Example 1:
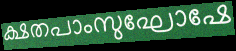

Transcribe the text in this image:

ക്ഷതപാംസുഘോഷേ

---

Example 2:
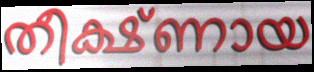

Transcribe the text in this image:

തീക്ഷ്ണായ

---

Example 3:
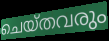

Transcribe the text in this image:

ചെയ്തവരും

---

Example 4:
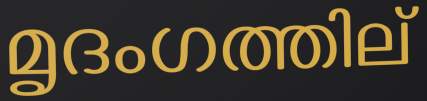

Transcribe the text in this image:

മൃദംഗത്തില്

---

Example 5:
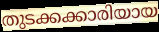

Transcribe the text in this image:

തുടക്കക്കാരിയായ